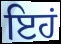
ਇਹਂ